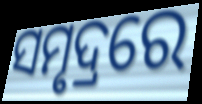
ସମୃଦ୍ରରେ